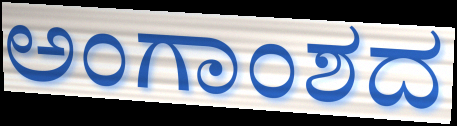
ಅಂಗಾಂಶದ